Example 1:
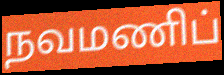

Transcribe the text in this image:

நவமணிப்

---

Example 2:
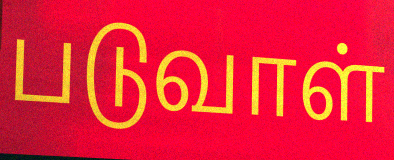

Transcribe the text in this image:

படுவாள்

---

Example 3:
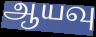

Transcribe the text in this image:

ஆயவு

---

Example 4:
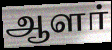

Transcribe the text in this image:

ஆளர்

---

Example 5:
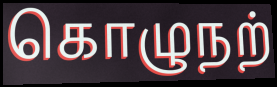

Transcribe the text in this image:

கொழுநற்